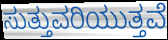
ಸುತ್ತುವರಿಯುತ್ತವೆ